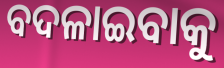
ବଦଳାଇବାକୁ